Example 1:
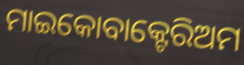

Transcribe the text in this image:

ମାଇକୋବାକ୍ଟେରିଅମ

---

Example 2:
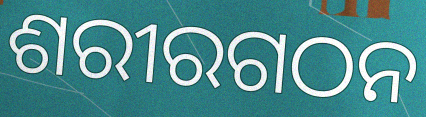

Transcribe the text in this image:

ଶରୀରଗଠନ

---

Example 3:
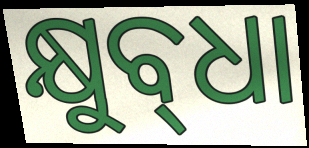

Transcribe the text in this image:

କ୍ଷୁବ୍‌ଧା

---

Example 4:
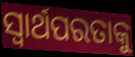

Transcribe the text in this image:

ସ୍ଵାର୍ଥପରତାକୁ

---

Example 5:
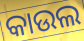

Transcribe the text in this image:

କାଉଲ